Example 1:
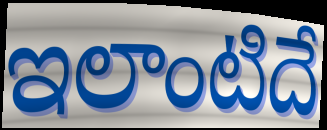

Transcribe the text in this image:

ఇలాంటిదే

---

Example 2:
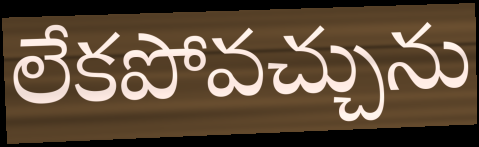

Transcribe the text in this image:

లేకపోవచ్చును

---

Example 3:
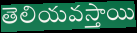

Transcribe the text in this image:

తెలియవస్తాయి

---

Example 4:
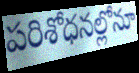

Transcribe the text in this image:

పరిశోధనల్లోనూ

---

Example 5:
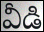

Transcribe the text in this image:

వీడి